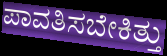
ಪಾವತಿಸಬೇಕಿತ್ತು